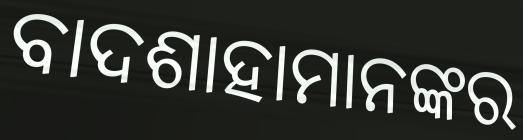
ବାଦଶାହାମାନଙ୍କର